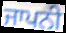
ਜਾਪਨੀ